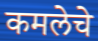
कमलेचे